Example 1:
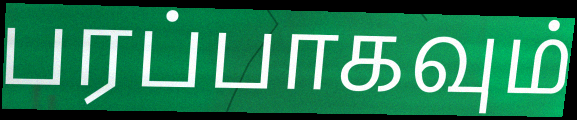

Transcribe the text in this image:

பரப்பாகவும்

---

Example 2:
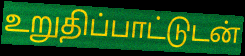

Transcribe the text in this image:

உறுதிப்பாட்டுடன்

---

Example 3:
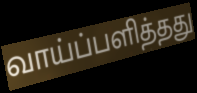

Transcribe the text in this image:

வாய்ப்பளித்தது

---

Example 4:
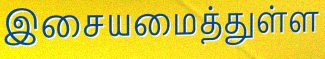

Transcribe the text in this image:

இசையமைத்துள்ள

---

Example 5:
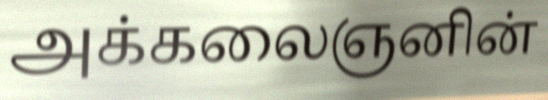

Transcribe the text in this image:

அக்கலைஞனின்